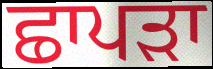
ਛਾਪੜਾ